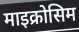
माइक्रोसिम